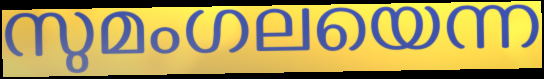
സുമംഗലയെന്ന